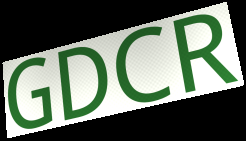
GDCR